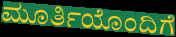
ಮೂರ್ತಿಯೊಂದಿಗೆ